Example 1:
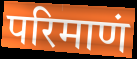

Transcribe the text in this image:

परिमाणं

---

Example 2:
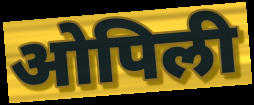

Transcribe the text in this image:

ओपिली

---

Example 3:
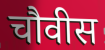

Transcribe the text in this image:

चौवीस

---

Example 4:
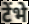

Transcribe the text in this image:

टेंभे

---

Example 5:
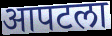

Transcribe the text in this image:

आपटला